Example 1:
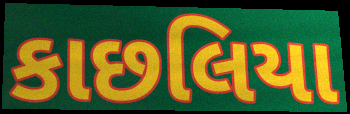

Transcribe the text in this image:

કાછલિયા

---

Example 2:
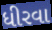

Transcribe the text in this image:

ધીરવા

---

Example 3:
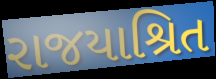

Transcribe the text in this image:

રાજયાશ્રિત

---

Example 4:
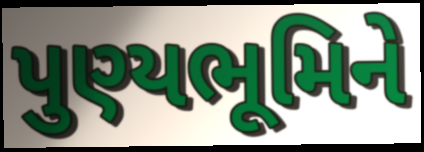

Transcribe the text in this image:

પુણ્યભૂમિને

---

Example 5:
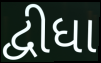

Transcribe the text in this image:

દ્વીધા